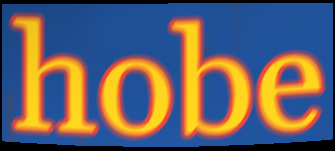
hobe